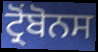
ਟ੍ਰੋਂਬੋਨਸ